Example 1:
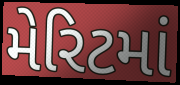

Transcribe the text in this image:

મેરિટમાં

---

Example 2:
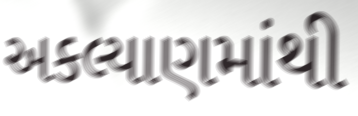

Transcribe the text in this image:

અકલ્યાણમાંથી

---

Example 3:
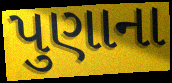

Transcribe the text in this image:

પુણાના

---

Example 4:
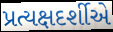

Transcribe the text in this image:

પ્રત્યક્ષદર્શીએ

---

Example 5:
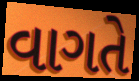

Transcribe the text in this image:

વાગતે